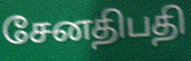
சேனதிபதி